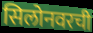
सिलोनवरची